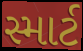
સ્માર્ટ